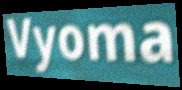
Vyoma